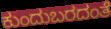
ಕುಂದುಬರದಂತೆ